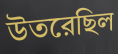
উতরেছিল